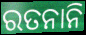
ରତନାନି